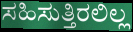
ಸಹಿಸುತ್ತಿರಲಿಲ್ಲ